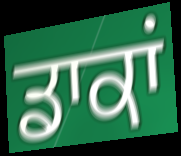
ਡਾਕਾਂ